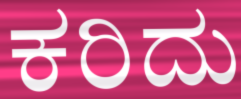
ಕರಿದು